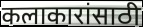
कलाकारांसाठी